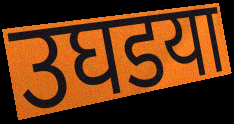
उघडया